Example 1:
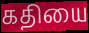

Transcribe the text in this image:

கதியை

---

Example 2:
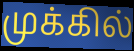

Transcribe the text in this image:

முக்கில்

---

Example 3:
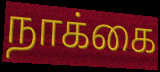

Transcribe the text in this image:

நாக்கை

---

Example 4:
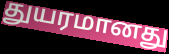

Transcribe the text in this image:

துயரமானது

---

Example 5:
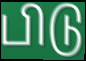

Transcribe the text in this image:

பிடு